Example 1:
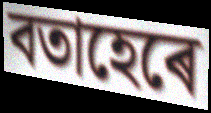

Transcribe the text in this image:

বতাহেৰে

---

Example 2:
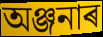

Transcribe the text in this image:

অঞ্জনাৰ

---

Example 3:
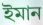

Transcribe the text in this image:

ইমান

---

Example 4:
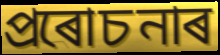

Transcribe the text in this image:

প্ৰৰোচনাৰ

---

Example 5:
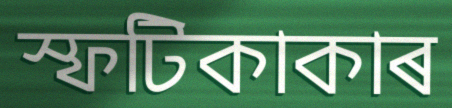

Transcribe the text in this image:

স্ফটিকাকাৰ